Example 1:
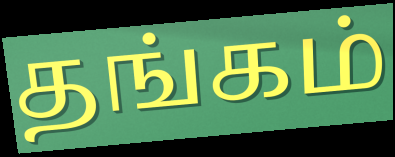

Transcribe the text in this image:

தங்கம்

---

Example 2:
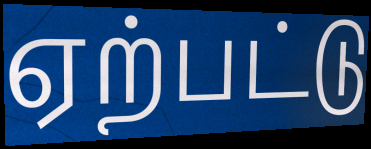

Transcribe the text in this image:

ஏற்பட்டு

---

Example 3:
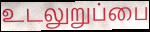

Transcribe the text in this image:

உடலுறுப்பை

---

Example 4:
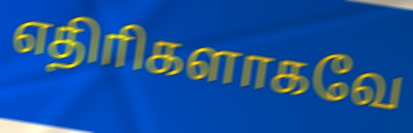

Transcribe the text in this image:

எதிரிகளாகவே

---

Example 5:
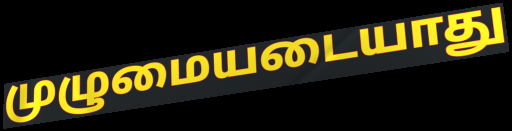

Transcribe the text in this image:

முழுமையடையாது